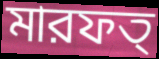
মারফত্